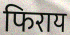
फिराय